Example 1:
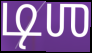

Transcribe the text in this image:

டிஶ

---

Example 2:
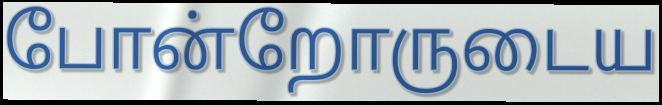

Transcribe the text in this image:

போன்றோருடைய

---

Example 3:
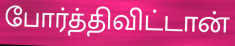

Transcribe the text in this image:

போர்த்திவிட்டான்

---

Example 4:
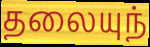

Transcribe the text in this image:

தலையுந்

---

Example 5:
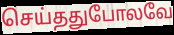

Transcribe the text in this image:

செய்ததுபோலவே